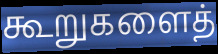
கூறுகளைத்